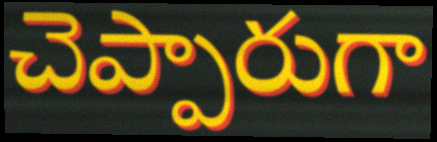
చెప్పారుగా